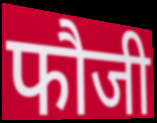
फौजी